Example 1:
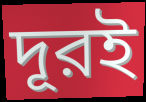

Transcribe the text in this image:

দূরই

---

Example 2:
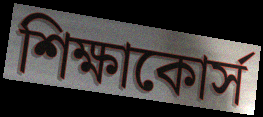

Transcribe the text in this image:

শিক্ষাকোর্স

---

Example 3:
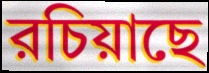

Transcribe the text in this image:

রচিয়াছে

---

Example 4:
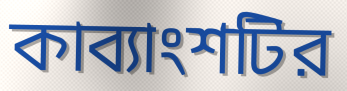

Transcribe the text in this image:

কাব্যাংশটির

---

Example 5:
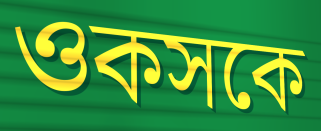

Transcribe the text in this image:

ওকসকে